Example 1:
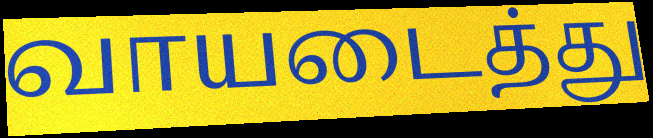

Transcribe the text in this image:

வாயடைத்து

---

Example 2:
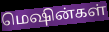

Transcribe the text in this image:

மெஷின்கள்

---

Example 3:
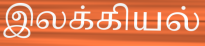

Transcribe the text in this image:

இலக்கியல்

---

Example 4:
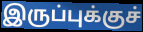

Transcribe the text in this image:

இருப்புக்குச்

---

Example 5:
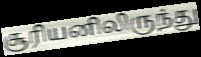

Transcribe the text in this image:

சூரியனிலிருந்து